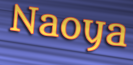
Naoya